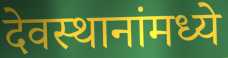
देवस्थानांमध्ये